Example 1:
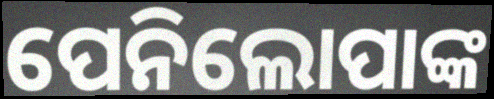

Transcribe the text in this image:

ପେନିଲୋପାଙ୍କ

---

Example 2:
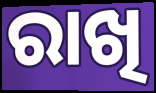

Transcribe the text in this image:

ରାଖି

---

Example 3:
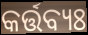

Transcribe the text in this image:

କର୍ତ୍ତବ୍ୟଃ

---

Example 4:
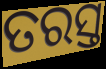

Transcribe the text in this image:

ତରସ୍ତ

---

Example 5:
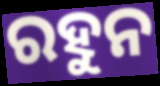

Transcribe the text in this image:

ରହୁନ